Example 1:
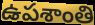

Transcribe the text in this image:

ఉపశాంతి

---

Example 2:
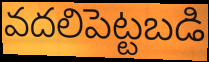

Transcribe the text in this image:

వదలిపెట్టబడి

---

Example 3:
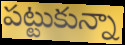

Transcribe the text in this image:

పట్టుకున్నా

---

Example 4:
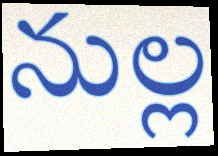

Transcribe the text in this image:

నుల్ల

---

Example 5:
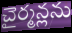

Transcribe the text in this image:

చైర్మన్లను